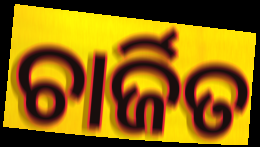
ଚାର୍ଜିତ